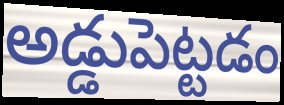
అడ్డుపెట్టడం